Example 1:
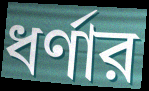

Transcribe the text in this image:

ধর্ণার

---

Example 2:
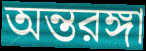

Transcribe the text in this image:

অন্তরঙ্গা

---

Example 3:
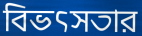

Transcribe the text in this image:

বিভৎসতার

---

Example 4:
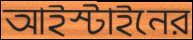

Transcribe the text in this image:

আইস্টাইনের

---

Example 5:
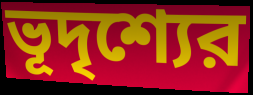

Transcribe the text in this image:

ভূদৃশ্যের